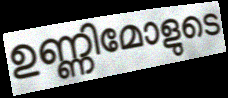
ഉണ്ണിമോളുടെ